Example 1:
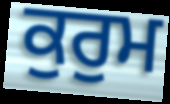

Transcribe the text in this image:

ਕੁਰੁਮ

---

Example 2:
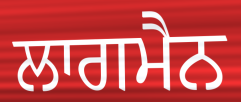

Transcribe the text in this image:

ਲਾਗਮੈਨ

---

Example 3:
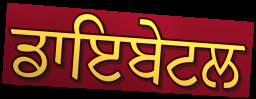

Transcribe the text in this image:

ਡਾਇਬੇਟਲ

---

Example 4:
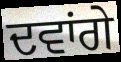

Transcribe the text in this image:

ਦਵਾਂਗੇ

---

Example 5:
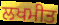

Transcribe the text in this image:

ਲਖਮੀਤ